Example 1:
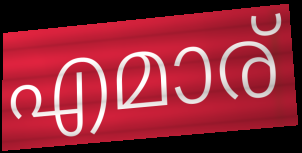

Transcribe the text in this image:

എമാര്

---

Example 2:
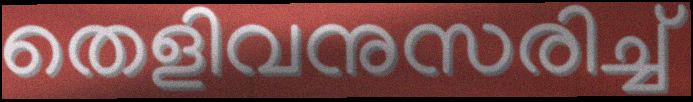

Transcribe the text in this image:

തെളിവനുസരിച്ച്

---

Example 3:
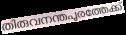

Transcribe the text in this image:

തിരുവനന്തപുരത്തേക്ക്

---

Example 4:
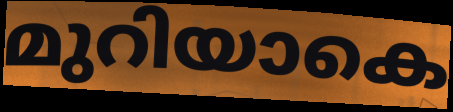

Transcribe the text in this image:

മുറിയാകെ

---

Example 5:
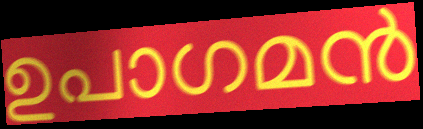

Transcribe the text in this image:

ഉപാഗമൻ